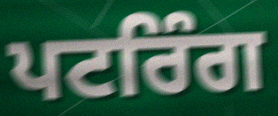
ਪਟਰਿੰਗ